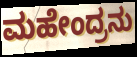
ಮಹೇಂದ್ರನು